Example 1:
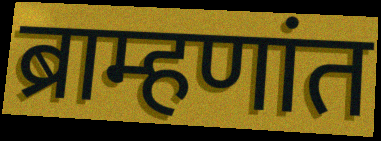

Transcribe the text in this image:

ब्राम्हणांत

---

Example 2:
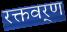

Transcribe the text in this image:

रक्तवर्ण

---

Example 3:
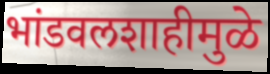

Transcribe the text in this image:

भांडवलशाहीमुळे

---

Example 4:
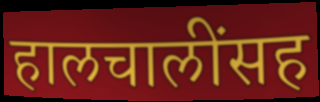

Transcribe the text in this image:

हालचालींसह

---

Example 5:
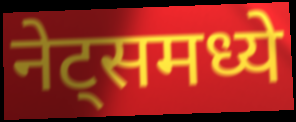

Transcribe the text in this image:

नेट्समध्ये